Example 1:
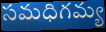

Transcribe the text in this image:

సమధిగమ్య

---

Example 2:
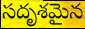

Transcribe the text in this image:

సదృశమైన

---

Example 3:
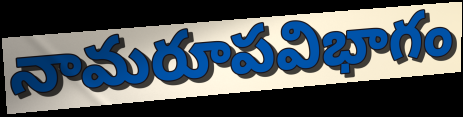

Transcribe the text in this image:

నామరూపవిభాగం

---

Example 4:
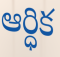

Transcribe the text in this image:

ఆర్ధిక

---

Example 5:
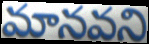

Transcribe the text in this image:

మానవని